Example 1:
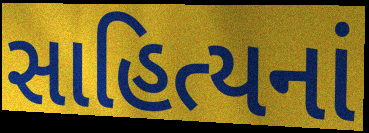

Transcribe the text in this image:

સાહિત્યનાં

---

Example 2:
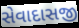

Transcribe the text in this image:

સેવાદાસજી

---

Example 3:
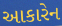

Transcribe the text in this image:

આકારેન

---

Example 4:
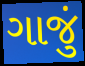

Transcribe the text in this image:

ગાજું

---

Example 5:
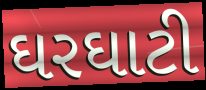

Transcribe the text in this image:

ઘરઘાટી